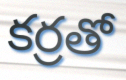
కర్రతో